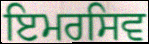
ਇਮਰਸਿਵ